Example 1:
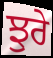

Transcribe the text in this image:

ਝੁਰੇ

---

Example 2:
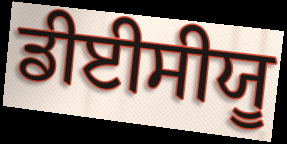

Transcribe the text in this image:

ਡੀਈਸੀਯੂ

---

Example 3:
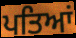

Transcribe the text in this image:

ਪਤਿਆਂ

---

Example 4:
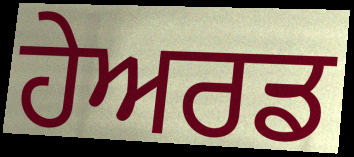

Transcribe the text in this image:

ਹੇਅਰਡ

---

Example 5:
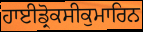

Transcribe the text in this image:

ਹਾਈਡ੍ਰੋਕਸੀਕੁਮਾਰਿਨ